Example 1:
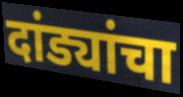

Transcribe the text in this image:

दांड्यांचा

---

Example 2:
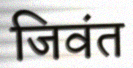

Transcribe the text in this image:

जिवंत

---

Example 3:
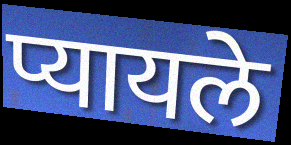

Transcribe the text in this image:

प्यायले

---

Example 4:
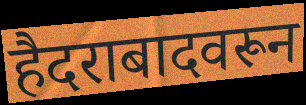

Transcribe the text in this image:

हैदराबादवरून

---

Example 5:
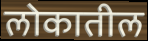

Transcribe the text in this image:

लोकातील